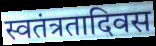
स्वतंत्रतादिवस